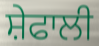
ਸ਼ੇਫਾਲੀ